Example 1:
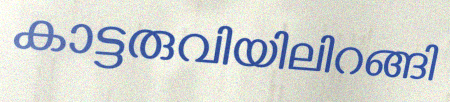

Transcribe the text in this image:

കാട്ടരുവിയിലിറങ്ങി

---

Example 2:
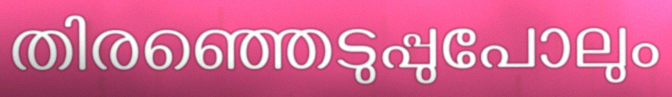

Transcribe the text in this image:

തിരഞ്ഞെടുപ്പുപോലും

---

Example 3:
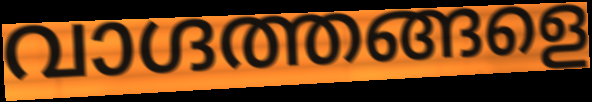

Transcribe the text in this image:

വാഗ്ദത്തങ്ങളെ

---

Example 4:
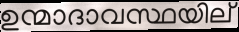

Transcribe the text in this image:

ഉന്മാദാവസ്ഥയില്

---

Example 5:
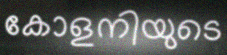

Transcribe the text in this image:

കോളനിയുടെ